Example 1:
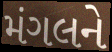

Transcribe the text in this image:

મંગલને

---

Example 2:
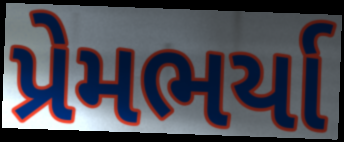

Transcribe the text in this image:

પ્રેમભર્યા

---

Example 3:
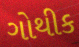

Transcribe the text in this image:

ગોથીક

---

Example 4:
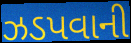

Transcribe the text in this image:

ઝડપવાની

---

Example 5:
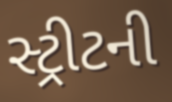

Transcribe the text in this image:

સ્ટ્રીટની